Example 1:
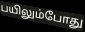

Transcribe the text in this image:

பயிலும்போது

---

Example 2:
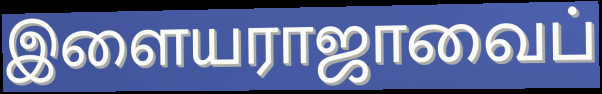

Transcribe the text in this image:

இளையராஜாவைப்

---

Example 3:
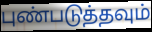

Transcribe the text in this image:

புண்படுத்தவும்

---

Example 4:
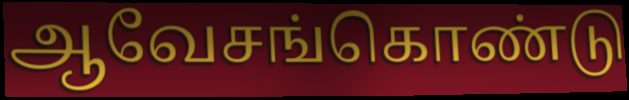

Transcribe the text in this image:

ஆவேசங்கொண்டு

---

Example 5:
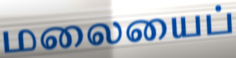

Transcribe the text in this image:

மலையைப்